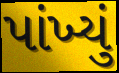
પાંખ્યું